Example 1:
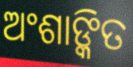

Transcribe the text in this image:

ଅଂଶାଙ୍କିତ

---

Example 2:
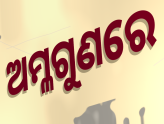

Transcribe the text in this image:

ଅମ୍ଳଗୁଣରେ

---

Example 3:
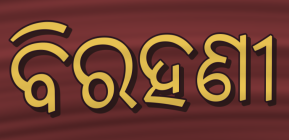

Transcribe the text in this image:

ବିରହଣୀ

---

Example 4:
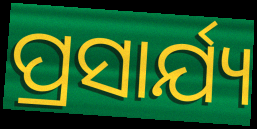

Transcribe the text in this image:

ପ୍ରସାର୍ଯ୍ୟ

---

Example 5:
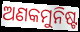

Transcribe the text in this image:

ଅଣକମୁନିଷ୍ଟ